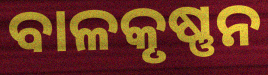
ବାଳକୃଷ୍ଣନ